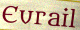
Eurail